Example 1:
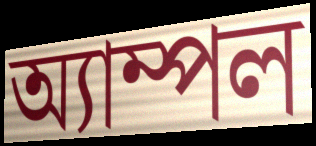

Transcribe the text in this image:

অ্যাম্পল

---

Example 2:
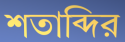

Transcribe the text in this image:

শতাব্দির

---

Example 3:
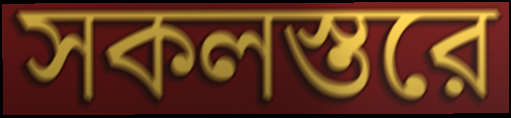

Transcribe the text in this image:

সকলস্তরে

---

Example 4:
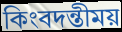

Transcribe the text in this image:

কিংবদন্তীময়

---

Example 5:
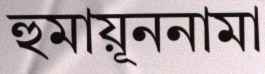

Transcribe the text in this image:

হুমায়ূননামা